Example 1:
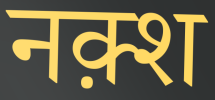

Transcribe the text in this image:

नक़्श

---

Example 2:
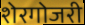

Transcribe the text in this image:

शेरगोजरी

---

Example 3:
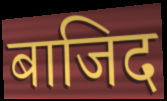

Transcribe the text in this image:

बाजिद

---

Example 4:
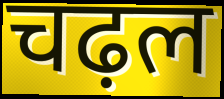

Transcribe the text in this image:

चढ़ल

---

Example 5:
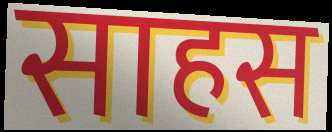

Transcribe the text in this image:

साहस